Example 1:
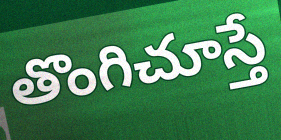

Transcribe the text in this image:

తొంగిచూస్తే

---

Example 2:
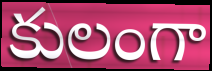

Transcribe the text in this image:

కులంగా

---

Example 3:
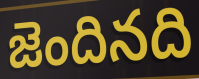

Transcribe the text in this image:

జెందినది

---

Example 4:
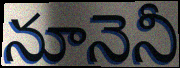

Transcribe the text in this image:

నూనెనీ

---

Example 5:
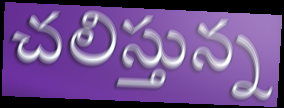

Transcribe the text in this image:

చలిస్తున్న